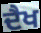
ਦੈਖ